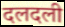
दलदली